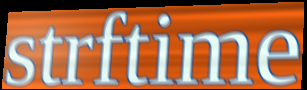
strftime